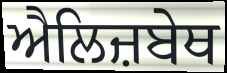
ਐਲਿਜ਼ਬੇਥ